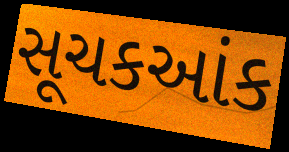
સૂચકઆંક